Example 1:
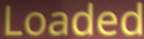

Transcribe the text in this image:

Loaded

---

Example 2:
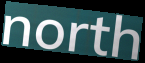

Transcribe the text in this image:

north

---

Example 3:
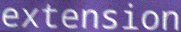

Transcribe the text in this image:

extension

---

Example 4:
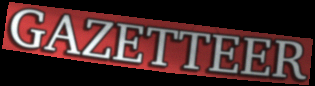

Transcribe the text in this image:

GAZETTEER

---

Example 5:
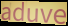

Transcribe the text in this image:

aduve